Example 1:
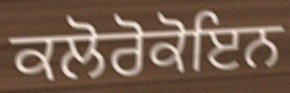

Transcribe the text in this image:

ਕਲੋਰੋਕੋਇਨ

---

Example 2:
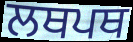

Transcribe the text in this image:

ਲਥਪਥ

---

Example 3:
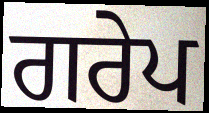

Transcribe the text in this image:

ਗਰੇਪ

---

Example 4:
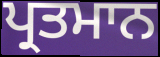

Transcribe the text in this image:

ਪ੍ਰਤਮਾਨ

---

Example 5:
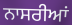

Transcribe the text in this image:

ਨਾਸਰੀਆਂ